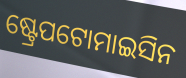
ଷ୍ଟ୍ରେପଟୋମାଇସିନ